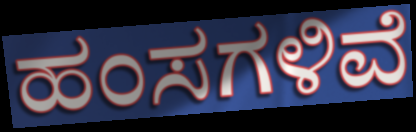
ಹಂಸಗಳಿವೆ